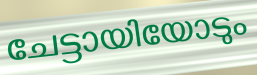
ചേട്ടായിയോടും